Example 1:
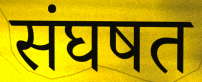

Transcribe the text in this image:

संघषत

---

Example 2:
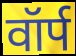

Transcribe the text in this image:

वॉर्प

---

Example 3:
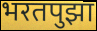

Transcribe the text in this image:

भरतपुझा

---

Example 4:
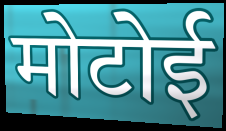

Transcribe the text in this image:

मोटोई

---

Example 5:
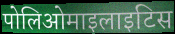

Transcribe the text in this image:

पोलिओमाइलाइटिस